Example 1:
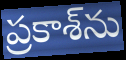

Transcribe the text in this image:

ప్రకాశ్‌ను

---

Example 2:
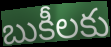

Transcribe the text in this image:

బుకీలకు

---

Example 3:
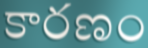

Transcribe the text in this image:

కారణం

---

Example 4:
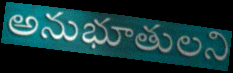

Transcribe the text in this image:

అనుభూతులని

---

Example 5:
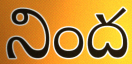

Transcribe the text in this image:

నింద